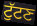
ਟੁੱਟਣ